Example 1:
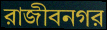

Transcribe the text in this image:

রাজীবনগর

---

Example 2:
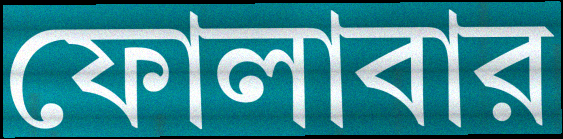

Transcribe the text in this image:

ফোলাবার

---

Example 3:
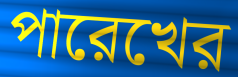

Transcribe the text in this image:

পারেখের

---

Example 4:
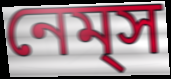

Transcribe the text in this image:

নেম্‌স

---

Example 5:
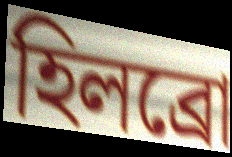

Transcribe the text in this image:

হিলব্রো